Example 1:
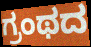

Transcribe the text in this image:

ಗ್ರಂಥದ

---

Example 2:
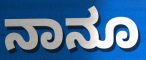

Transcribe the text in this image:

ನಾನೂ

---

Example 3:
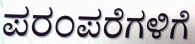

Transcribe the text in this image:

ಪರಂಪರೆಗಳಿಗೆ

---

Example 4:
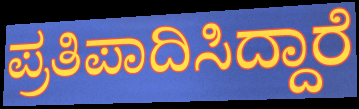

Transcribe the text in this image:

ಪ್ರತಿಪಾದಿಸಿದ್ದಾರೆ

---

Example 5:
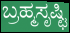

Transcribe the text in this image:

ಬ್ರಹ್ಮಸೃಷ್ಟಿ